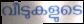
വീടുകളുടെ